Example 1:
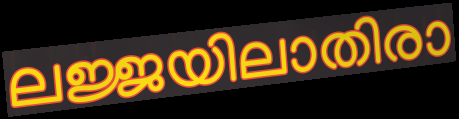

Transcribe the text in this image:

ലജ്ജയിലാതിരാ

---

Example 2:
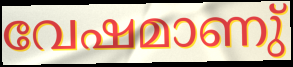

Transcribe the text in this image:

വേഷമാണു്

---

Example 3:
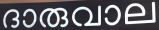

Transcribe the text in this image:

ദാരുവാല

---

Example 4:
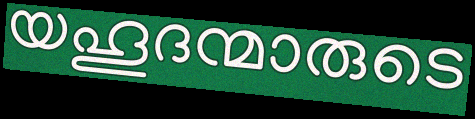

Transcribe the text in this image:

യഹൂദന്മാരുടെ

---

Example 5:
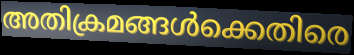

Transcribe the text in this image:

അതിക്രമങ്ങൾക്കെതിരെ